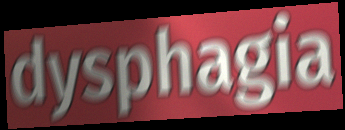
dysphagia